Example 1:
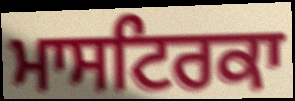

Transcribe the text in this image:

ਮਾਸਟਿਰਕਾ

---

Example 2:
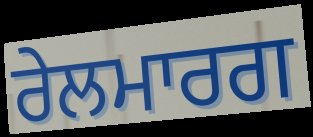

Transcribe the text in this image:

ਰੇਲਮਾਰਗ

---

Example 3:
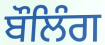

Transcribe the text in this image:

ਬੌਲਿੰਗ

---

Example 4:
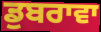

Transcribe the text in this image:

ਡੁਬਰਾਵਾ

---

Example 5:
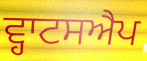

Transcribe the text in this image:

ਵ੍ਹਾਟਸਐਪ